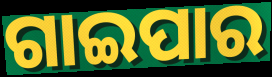
ଗାଇପାର